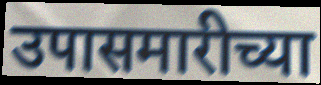
उपासमारीच्या